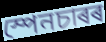
স্পেনচাৰৰ